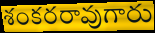
శంకరరావుగారు